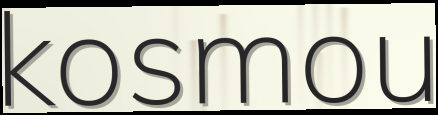
kosmou